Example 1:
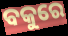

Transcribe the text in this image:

ବକୁରେ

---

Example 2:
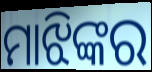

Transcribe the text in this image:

ମାଝିଙ୍କର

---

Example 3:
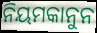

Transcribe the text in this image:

ନିୟମକାନୁନ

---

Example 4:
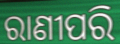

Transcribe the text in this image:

ରାଣୀପରି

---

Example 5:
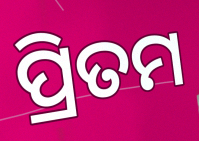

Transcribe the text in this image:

ପ୍ରିତମ